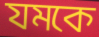
যমকে